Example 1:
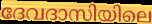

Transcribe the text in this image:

ദേവദാസിയിലെ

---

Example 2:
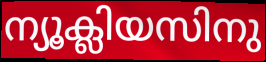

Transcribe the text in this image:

ന്യൂക്ലിയസിനു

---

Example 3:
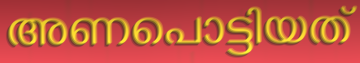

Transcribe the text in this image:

അണപൊട്ടിയത്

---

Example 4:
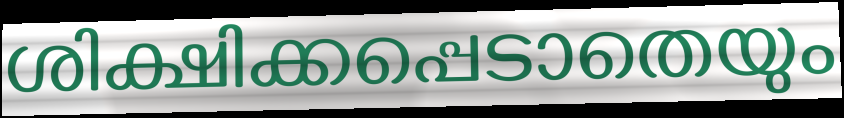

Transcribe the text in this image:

ശിക്ഷിക്കപ്പെടാതെയും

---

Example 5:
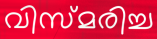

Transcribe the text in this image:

വിസ്മരിച്ച